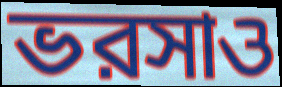
ভরসাও